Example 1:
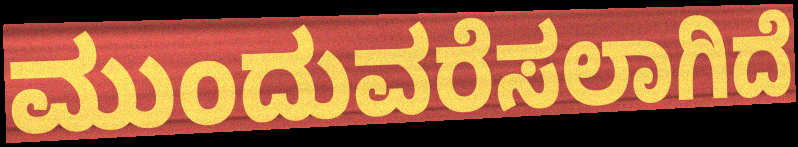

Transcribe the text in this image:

ಮುಂದುವರೆಸಲಾಗಿದೆ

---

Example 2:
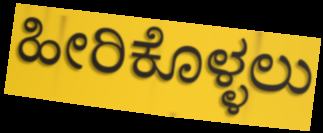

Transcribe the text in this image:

ಹೀರಿಕೊಳ್ಳಲು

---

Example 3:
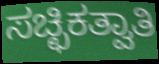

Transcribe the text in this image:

ಸಚ್ಛಿಕತ್ವಾತಿ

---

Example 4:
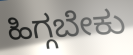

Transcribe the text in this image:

ಹಿಗ್ಗಬೇಕು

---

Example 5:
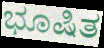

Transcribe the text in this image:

ಭೂಷಿತ